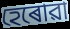
হেৰোৱা